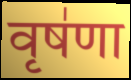
वृष॑णा